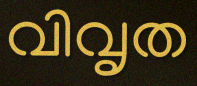
വിവൃത